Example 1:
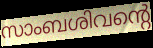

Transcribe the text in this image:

സാംബശിവന്റെ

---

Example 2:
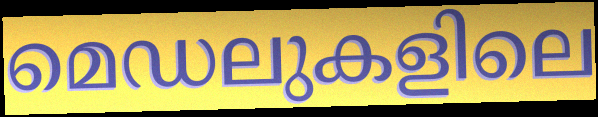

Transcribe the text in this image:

മെഡലുകളിലെ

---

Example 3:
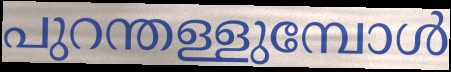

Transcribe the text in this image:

പുറന്തള്ളുമ്പോൾ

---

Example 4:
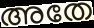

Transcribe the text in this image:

അതേ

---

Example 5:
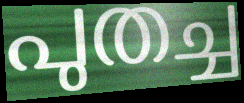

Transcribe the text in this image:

പുതച്ച